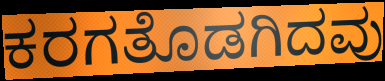
ಕರಗತೊಡಗಿದವು